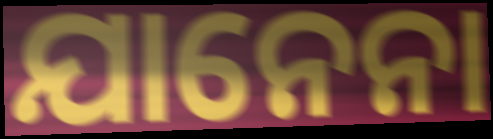
ଯାନେନା